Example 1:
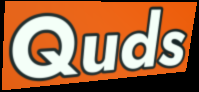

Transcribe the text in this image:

Quds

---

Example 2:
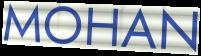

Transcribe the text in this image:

MOHAN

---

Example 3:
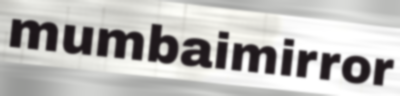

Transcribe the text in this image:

mumbaimirror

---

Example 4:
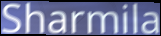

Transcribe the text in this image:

Sharmila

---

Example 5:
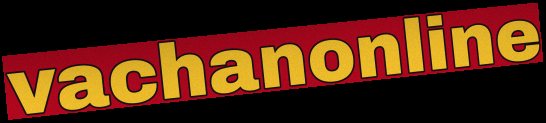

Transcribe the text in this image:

vachanonline